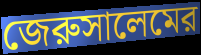
জেরুসালেমের